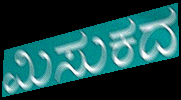
ಮಿಸುಕದ